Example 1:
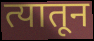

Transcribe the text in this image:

त्‍यातून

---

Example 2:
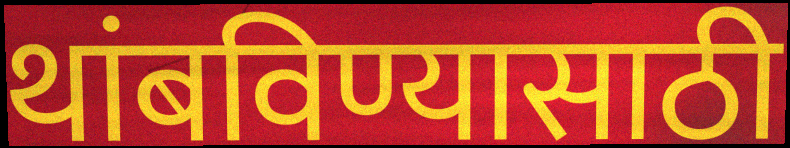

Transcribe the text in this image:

थांबविण्यासाठी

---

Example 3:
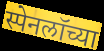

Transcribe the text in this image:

स्पेनलॉच्या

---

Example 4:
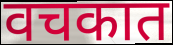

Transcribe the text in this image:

वचकात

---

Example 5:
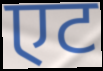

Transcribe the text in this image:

एट